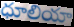
ధూలియా